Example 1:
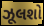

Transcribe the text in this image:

ઝૂલશો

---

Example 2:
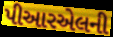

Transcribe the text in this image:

પીઆરએલની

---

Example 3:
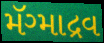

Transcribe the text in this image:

મૅગ્માદ્રવ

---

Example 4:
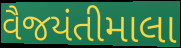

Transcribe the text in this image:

વૈજયંતીમાલા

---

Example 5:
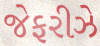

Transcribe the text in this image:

જેફરીઝે